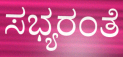
ಸಭ್ಯರಂತೆ